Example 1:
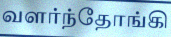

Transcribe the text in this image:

வளர்ந்தோங்கி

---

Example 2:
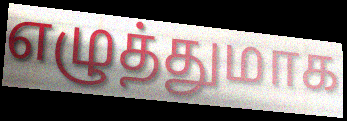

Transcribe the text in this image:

எழுத்துமாக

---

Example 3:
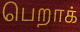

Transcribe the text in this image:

பெறாக்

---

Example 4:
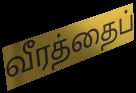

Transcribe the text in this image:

வீரத்தைப்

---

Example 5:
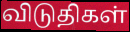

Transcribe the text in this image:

விடுதிகள்